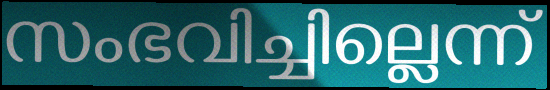
സംഭവിച്ചില്ലെന്ന്